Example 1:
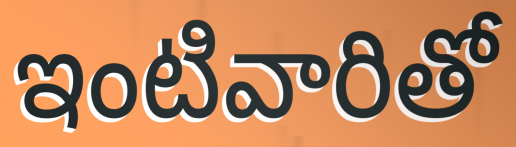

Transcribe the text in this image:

ఇంటివారితో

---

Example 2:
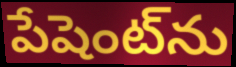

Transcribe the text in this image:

పేషెంట్‌ను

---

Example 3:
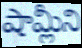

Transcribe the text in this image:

షామ్లీని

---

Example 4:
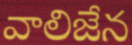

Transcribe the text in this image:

వాలిజేన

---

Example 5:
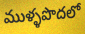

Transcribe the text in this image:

ముళ్ళపొదలో